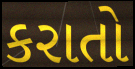
કરાતો